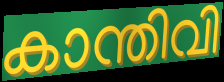
കാന്തിവി